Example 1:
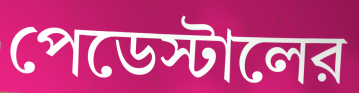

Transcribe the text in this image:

পেডেস্টালের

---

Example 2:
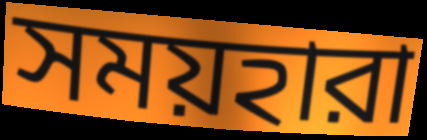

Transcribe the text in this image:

সময়হারা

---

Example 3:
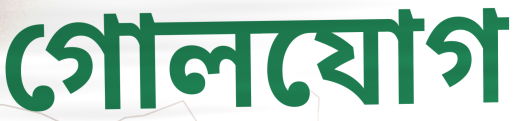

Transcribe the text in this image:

গোলযোগ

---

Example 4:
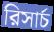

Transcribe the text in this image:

রিসার্চ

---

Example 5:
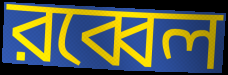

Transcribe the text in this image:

রব্বেল